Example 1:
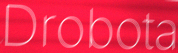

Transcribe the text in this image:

Drobota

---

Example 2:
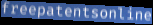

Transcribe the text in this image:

freepatentsonline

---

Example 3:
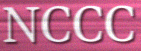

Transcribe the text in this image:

NCCC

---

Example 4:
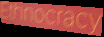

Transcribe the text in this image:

Ethnocracy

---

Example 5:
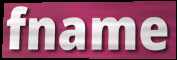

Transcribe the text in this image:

fname